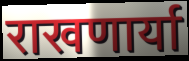
राखणार्या